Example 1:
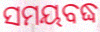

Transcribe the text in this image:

ସମୟବଦ୍ଧ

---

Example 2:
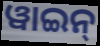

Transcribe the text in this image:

ୱାଇନ୍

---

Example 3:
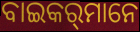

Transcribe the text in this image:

ବାଇକର୍‌ମାନେ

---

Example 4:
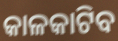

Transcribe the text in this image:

କାଳକାଟିବ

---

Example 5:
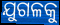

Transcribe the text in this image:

ଯୁଗଳକୁ